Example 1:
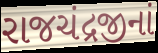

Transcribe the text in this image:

રાજચંદ્રજીનાં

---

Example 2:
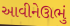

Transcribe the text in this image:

આવીનેઊભું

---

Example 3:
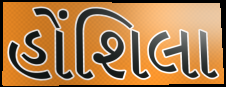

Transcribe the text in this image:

હોંશિલા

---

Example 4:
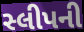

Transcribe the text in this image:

સ્લીપની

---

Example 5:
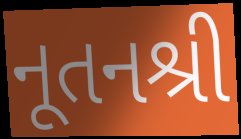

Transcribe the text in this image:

નૂતનશ્રી